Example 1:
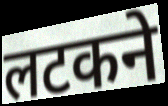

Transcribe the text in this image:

लटकने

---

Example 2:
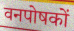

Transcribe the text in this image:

वनपोषकों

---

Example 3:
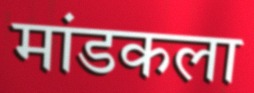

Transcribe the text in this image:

मांडकला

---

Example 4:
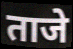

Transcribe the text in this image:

ताजे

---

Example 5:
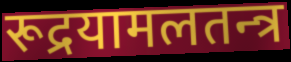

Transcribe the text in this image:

रूद्रयामलतन्त्र